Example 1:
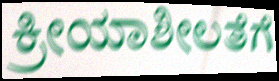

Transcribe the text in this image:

ಕ್ರೀಯಾಶೀಲತೆಗೆ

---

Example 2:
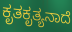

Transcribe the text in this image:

ಕೃತಕೃತ್ಯನಾದೆ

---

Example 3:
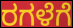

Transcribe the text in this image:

ರಗಳೆಗೆ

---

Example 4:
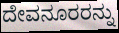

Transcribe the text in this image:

ದೇವನೂರರನ್ನು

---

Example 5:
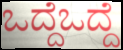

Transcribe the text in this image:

ಒದ್ದೆಒದ್ದೆ